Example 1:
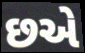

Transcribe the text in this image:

છએ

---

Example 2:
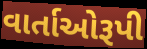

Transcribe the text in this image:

વાર્તાઓરૂપી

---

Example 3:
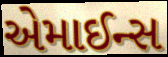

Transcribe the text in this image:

એમાઈન્સ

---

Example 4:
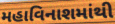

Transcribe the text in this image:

મહાવિનાશમાંથી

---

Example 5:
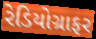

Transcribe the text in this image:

રેડિયોગ્રાફર